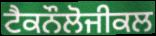
ਟੈਕਨੌਲੋਜੀਕਲ